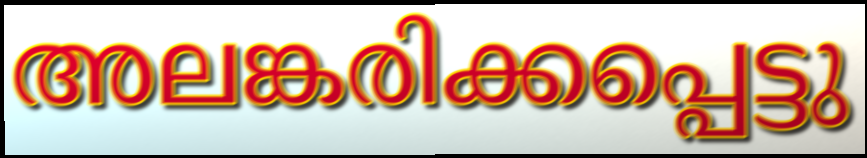
അലങ്കരിക്കപ്പെട്ടു